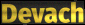
Devach